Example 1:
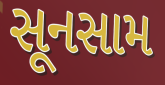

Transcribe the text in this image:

સૂનસામ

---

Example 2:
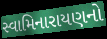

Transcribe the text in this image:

સ્વામિનારાયણનો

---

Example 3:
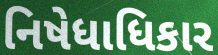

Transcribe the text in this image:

નિષેધાધિકાર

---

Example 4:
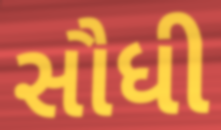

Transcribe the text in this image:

સૌધી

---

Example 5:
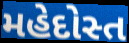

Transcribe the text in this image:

મહેદોસ્ત